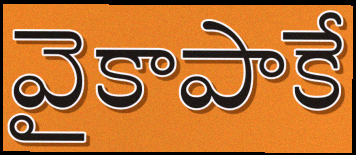
వైకాపాకే